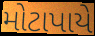
મોટાપાયે